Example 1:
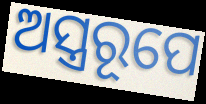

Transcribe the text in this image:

ଅସ୍ତ୍ରରୂପେ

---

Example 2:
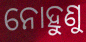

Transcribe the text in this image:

ନୋହୁଣୁ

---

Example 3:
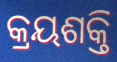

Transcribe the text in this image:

କ୍ରୟଶକ୍ତି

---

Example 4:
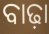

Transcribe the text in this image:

ବାଢ଼ା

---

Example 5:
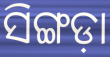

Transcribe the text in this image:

ସିଙ୍ଗଡ଼ା